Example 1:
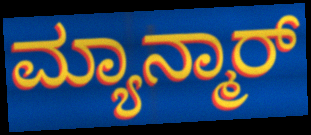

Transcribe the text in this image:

ಮ್ಯಾನ್ಮಾರ್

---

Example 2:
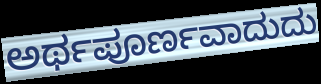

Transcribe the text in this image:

ಅರ್ಥಪೂರ್ಣವಾದುದು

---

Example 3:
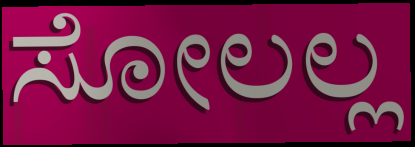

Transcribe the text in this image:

ಸೋಲಲ್ಲ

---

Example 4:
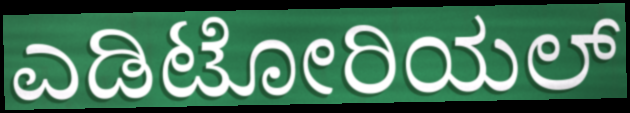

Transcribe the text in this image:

ಎಡಿಟೋರಿಯಲ್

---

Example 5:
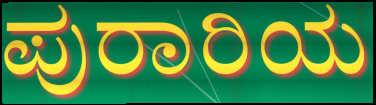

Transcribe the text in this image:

ಪುರಾರಿಯ